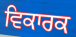
ਵਿਕਾਰਕ